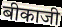
बीकाजी